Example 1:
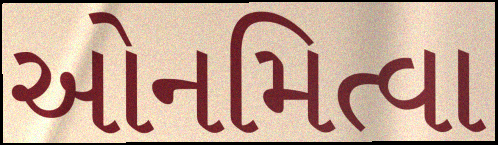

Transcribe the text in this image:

ઓનમિત્વા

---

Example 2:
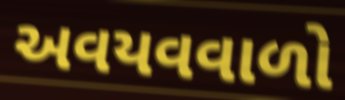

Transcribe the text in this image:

અવયવવાળો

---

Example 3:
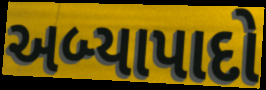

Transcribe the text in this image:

અબ્યાપાદો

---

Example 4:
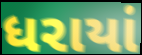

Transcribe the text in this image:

ધરાયાં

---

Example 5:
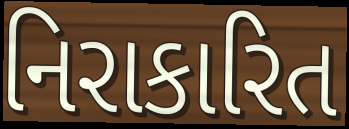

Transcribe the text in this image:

નિરાકારિત